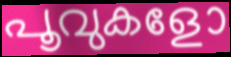
പൂവുകളോ